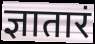
ज्ञातारं